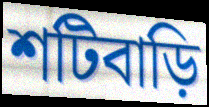
শটিবাড়ি